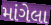
માંગેલા